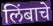
लिंबाचे